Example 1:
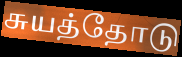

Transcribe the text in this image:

சுயத்தோடு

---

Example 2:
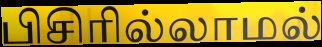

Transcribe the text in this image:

பிசிரில்லாமல்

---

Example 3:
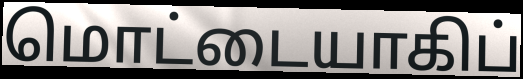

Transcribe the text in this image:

மொட்டையாகிப்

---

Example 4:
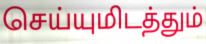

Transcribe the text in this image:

செய்யுமிடத்தும்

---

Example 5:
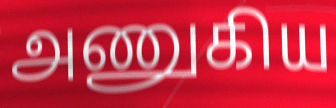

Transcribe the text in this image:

அணுகிய